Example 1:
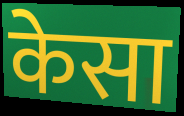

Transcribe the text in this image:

केसा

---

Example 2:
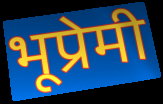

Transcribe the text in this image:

भूप्रेमी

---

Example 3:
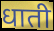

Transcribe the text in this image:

धाती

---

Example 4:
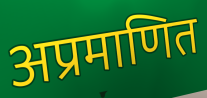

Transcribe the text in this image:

अप्रमाणित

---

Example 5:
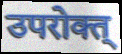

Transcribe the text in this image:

उपरोक्त्